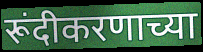
रूंदीकरणाच्या